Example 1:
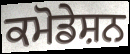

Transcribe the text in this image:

ਕਮੋਡੇਸ਼ਨ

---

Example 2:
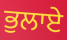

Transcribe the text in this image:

ਭੁਲਾਏ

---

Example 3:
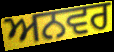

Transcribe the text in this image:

ਅਨਵਰ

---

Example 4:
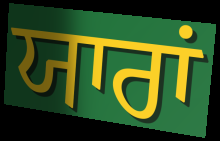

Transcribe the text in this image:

ਯਾਰਾਂ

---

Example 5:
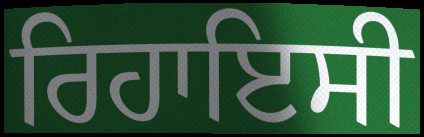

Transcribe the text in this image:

ਰਿਹਾਇਸੀ